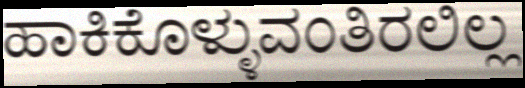
ಹಾಕಿಕೊಳ್ಳುವಂತಿರಲಿಲ್ಲ